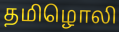
தமிழொலி